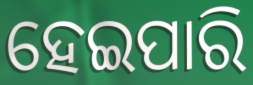
ହେଇପାରି